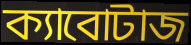
ক্যাবোটাজ